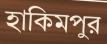
হাকিমপুর